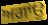
ਅਗਾਂਉ